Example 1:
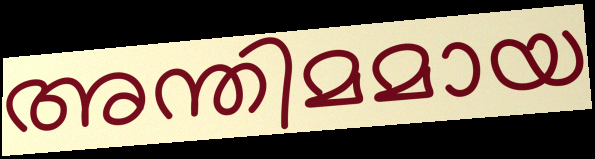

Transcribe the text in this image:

അന്തിമമായ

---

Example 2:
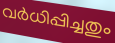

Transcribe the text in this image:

വർധിപ്പിച്ചതും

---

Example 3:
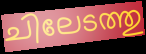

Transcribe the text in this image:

ചിലേടത്തു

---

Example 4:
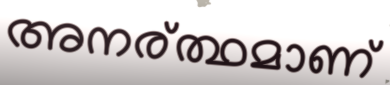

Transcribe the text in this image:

അനര്ത്ഥമാണ്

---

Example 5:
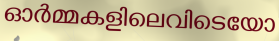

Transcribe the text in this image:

ഓർമ്മകളിലെവിടെയോ